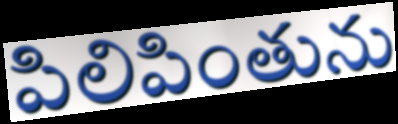
పిలిపింతును